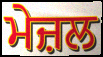
ਮੇਜ਼ਲ